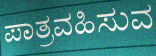
ಪಾತ್ರವಹಿಸುವ